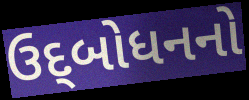
ઉદ્‌બોધનનો